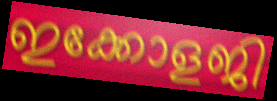
ഇക്കോളജി